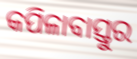
କପିଳାବାସ୍ତୁର